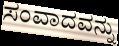
ಸಂವಾದವನ್ನು